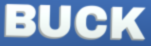
BUCK